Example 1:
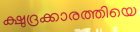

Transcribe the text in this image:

ക്ഷുദ്രക്കാരത്തിയെ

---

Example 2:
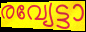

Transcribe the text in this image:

രവ്യേട്ടാ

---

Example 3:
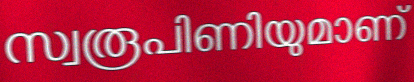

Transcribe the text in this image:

സ്വരൂപിണിയുമാണ്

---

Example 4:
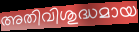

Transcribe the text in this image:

അതിവിശുദ്ധമായ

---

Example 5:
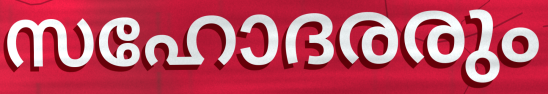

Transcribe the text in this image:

സഹോദരരും